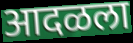
आदळला